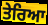
ਤੇਰਿਆ